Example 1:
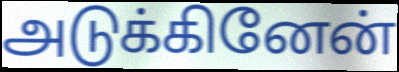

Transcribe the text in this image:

அடுக்கினேன்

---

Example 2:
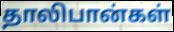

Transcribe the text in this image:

தாலிபான்கள்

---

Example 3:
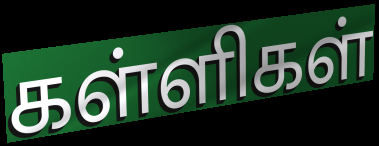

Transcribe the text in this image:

கள்ளிகள்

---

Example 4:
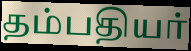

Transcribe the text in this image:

தம்பதியர்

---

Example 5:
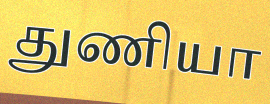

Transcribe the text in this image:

துணியா